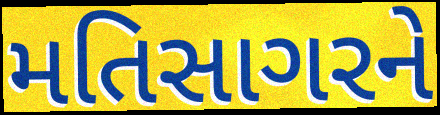
મતિસાગરને